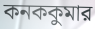
কনককুমার